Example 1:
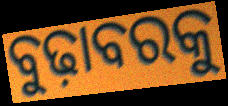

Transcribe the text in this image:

ବୁଢ଼ାବରକୁ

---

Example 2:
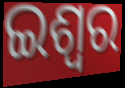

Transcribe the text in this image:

ଇଶ୍ବର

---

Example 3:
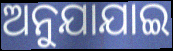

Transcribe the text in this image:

ଅନୁଯାଯାଇ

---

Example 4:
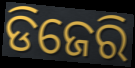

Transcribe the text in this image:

ଡିଜେରି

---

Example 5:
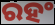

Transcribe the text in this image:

ରହଂ